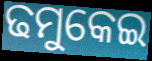
ଢମୁକେଇ